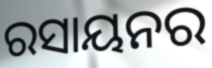
ରସାୟନର